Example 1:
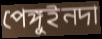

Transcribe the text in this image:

পেঙ্গুইনদা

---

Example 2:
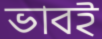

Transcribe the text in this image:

ভাবই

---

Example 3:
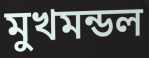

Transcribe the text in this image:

মুখমন্ডল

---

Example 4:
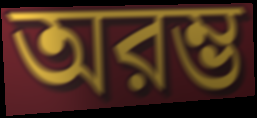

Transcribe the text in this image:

অরম্ভ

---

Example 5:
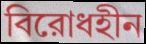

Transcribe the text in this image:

বিরোধহীন